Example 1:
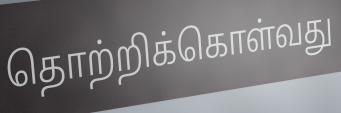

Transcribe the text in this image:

தொற்றிக்கொள்வது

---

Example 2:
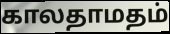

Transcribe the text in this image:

காலதாமதம்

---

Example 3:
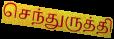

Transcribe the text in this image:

செந்துருத்தி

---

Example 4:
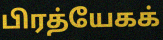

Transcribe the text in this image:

பிரத்யேகக்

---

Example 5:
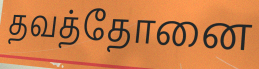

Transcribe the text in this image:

தவத்தோனை